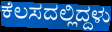
ಕೆಲಸದಲ್ಲಿದ್ದಳು